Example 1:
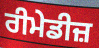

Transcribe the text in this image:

ਰੀਮੇਡੀਜ਼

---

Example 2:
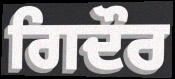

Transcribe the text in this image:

ਗਿਦੌਰ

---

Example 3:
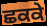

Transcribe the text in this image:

ਛਕਕੇ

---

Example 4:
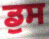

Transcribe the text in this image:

ਡੁਸ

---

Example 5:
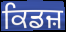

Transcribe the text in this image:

ਕਿਡਜ਼